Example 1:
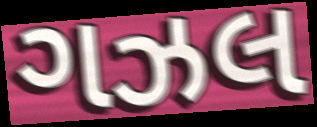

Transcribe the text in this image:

ગઝલ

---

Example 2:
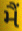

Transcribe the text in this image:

મૈં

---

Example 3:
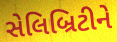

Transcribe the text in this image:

સેલિબ્રિટીને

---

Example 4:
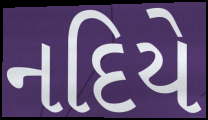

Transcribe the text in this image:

નદિયે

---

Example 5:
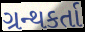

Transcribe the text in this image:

ગ્રન્થકર્તા